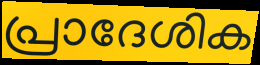
പ്രാദേശിക